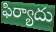
ఫిర్యాదు